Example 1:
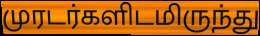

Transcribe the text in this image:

முரடர்களிடமிருந்து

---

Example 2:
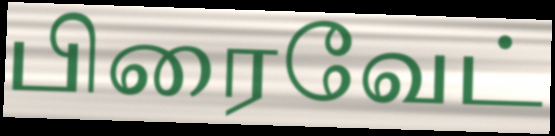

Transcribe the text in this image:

பிரைவேட்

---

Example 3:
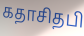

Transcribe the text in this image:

கதாசிதபி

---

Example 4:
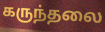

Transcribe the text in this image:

கருந்தலை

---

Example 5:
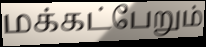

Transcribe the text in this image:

மக்கட்பேறும்